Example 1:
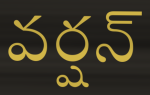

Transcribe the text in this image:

వర్షన్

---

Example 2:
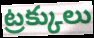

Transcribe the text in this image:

ట్రక్కులు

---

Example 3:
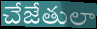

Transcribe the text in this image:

చేజేతులా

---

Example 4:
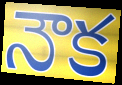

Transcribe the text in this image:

నౌక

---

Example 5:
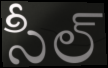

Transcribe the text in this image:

సీల్